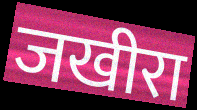
जखीरा